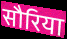
सौरिया